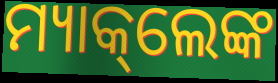
ମ୍ୟାକ୍‌ଲେଙ୍କ